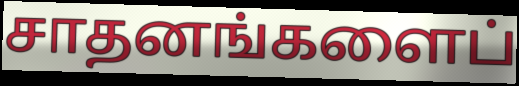
சாதனங்களைப்